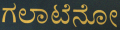
ಗಲಾಟೆನೋ